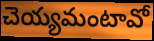
చెయ్యమంటావో